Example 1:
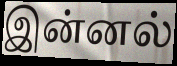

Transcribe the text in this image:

இன்னல்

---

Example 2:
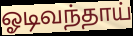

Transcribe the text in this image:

ஓடிவந்தாய்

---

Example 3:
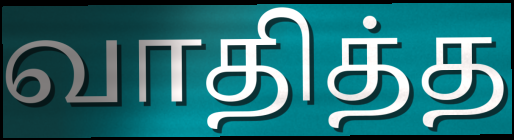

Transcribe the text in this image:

வாதித்த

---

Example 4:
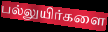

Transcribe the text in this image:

பல்லுயிர்களை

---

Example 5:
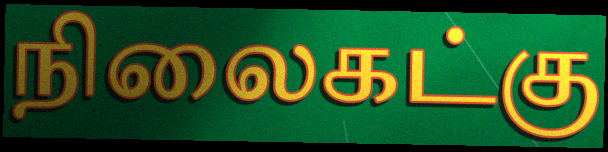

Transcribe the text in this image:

நிலைகட்கு